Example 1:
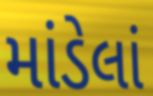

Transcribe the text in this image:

માંડેલાં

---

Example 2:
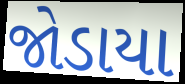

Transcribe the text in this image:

જોડાયા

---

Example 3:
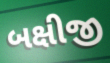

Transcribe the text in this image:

બક્ષીજી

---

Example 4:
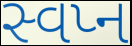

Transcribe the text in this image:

સ્વપ્ન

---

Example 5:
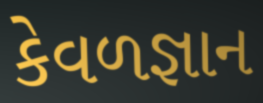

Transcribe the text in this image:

કેવળજ્ઞાન